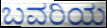
ಬವರಿಯ